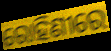
ରୋହିଣୀରେ